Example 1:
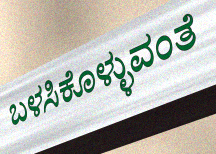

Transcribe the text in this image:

ಬಳಸಿಕೊಳ್ಳುವಂತೆ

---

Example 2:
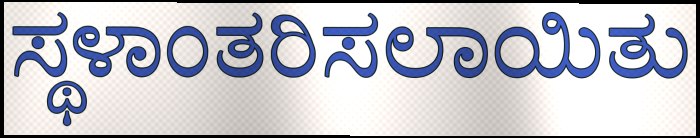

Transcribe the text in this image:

ಸ್ಥಳಾಂತರಿಸಲಾಯಿತು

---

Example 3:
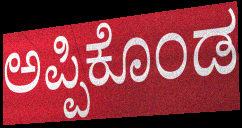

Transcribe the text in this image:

ಅಪ್ಪಿಕೊಂಡ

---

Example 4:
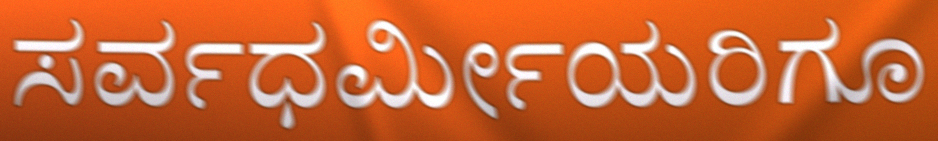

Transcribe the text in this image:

ಸರ್ವಧರ್ಮೀಯರಿಗೂ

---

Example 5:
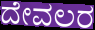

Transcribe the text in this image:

ದೇವಲರ